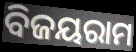
ବିଜୟରାମ